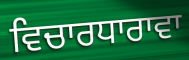
ਵਿਚਾਰਧਾਰਾਵਾ